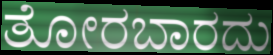
ತೋರಬಾರದು